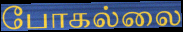
போகல்லை